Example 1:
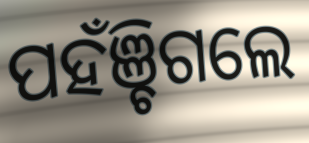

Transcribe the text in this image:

ପହଁଞ୍ଚିଗଲେ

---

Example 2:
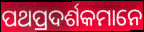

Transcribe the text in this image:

ପଥପ୍ରଦର୍ଶକମାନେ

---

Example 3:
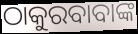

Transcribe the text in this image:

ଠାକୁରବାବାଙ୍କ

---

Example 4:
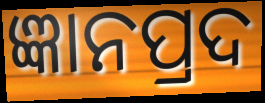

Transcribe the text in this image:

ଜ୍ଞାନପ୍ରଦ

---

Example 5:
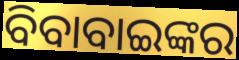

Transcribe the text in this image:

ବିବାବାଇଙ୍କର